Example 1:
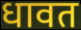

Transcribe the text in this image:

धावत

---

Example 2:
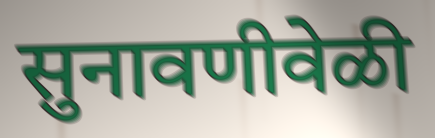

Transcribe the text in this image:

सुनावणीवेळी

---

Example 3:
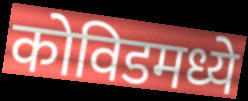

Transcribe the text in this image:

कोविडमध्ये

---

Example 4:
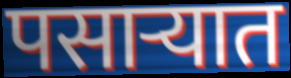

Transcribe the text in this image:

पसार्‍यात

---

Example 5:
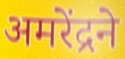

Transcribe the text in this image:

अमरेंद्रने